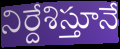
నిర్దేశిస్తూనే